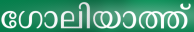
ഗോലിയാത്ത്